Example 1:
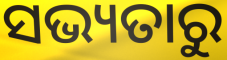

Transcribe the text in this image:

ସଭ୍ୟତାରୁ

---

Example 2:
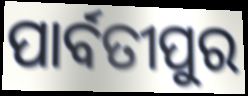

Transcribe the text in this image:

ପାର୍ବତୀପୁର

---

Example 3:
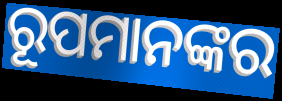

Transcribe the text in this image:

ରୂପମାନଙ୍କର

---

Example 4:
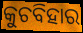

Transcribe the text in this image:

କୁଚବିହାର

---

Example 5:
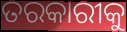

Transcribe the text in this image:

ତରକାରୀକୁ